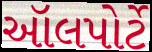
ઑલપોર્ટે